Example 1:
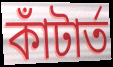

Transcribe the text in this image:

কাঁটার্ত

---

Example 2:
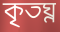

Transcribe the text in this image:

কৃতঘ্ন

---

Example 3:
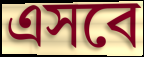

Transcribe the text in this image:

এসবে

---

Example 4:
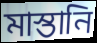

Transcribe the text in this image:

মাস্তানি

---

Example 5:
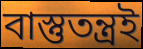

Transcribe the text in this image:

বাস্তুতন্ত্রই